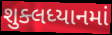
શુક્લધ્યાનમાં